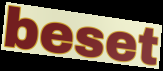
beset